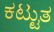
ಕಟ್ಟುತ